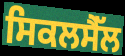
ਸਿਕਲਸੈੱਲ